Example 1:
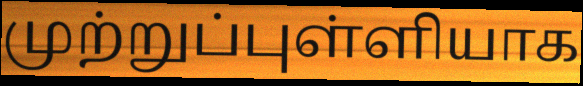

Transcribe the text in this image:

முற்றுப்புள்ளியாக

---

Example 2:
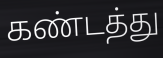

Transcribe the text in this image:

கண்டத்து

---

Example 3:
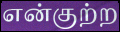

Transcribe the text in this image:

என்குற்ற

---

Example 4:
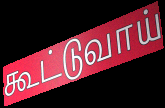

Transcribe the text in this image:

கூட்டுவாய்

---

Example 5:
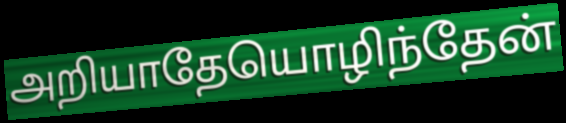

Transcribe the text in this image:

அறியாதேயொழிந்தேன்